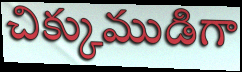
చిక్కుముడిగా